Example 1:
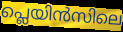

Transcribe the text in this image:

പ്ലെയിൻസിലെ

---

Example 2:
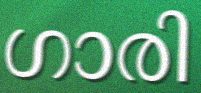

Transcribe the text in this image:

ഗാരി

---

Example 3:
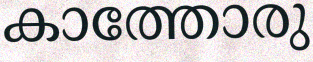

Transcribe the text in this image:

കാത്തോരു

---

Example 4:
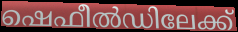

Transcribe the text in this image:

ഷെഫീൽഡിലേക്ക്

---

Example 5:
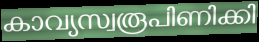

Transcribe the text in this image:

കാവ്യസ്വരൂപിണിക്കി